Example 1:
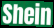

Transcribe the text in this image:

Shein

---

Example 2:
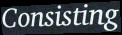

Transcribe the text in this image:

Consisting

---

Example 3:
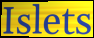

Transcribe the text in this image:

Islets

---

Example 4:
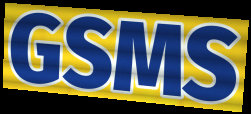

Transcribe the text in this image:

GSMS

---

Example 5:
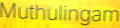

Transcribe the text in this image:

Muthulingam